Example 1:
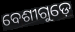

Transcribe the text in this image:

ବେଶୀଗୁଡ଼େ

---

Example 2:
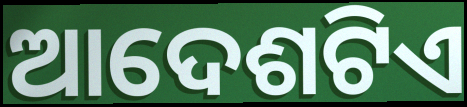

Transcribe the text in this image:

ଆଦେଶଟିଏ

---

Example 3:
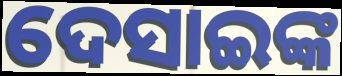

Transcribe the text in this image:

ଦେସାଇଙ୍କ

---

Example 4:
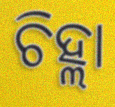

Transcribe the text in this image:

ଚିହ୍ଲା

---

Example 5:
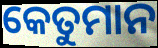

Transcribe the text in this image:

କେତୁମାନ